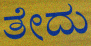
ತೇದು